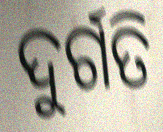
ଦୁର୍ଗତି